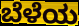
ಬೆಳೆಯ